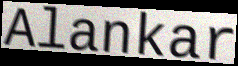
Alankar